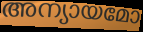
അന്യായമോ